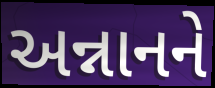
અન્નાનને